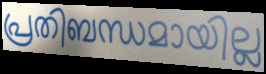
പ്രതിബന്ധമായില്ല